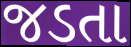
જડતા